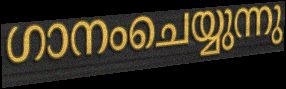
ഗാനംചെയ്യുന്നു